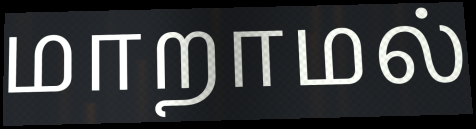
மாறாமல்